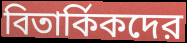
বিতার্কিকদের